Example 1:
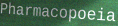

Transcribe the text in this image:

Pharmacopoeia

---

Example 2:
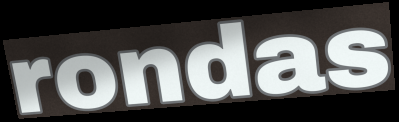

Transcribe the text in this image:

rondas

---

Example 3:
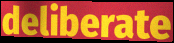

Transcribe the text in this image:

deliberate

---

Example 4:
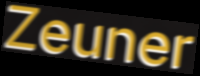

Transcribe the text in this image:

Zeuner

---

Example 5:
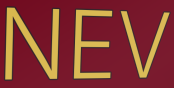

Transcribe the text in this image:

NEV